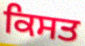
ਕਿਸਤ